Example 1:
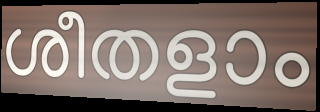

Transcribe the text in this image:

ശീതളാം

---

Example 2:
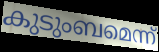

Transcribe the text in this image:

കുടുംബമെന്ന്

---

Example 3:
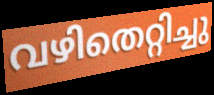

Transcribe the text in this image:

വഴിതെറ്റിച്ചു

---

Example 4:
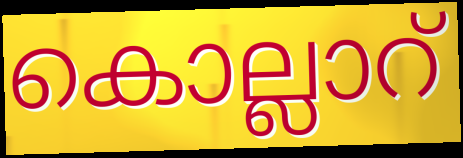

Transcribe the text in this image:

കൊല്ലാറ്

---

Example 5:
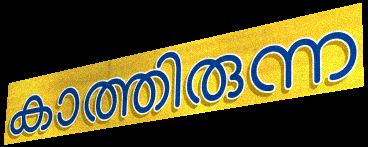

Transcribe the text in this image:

കാത്തിരുന്ന